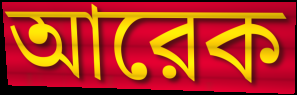
আরেক